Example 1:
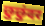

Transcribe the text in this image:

छुछुंदर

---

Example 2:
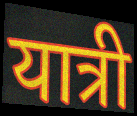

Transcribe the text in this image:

यात्री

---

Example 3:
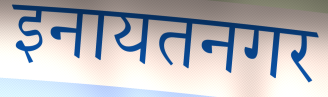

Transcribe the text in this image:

इनायतनगर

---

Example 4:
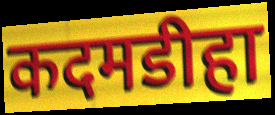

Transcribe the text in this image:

कदमडीहा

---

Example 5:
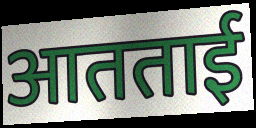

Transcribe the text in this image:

आतताई